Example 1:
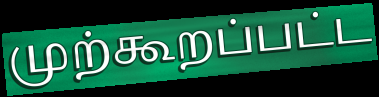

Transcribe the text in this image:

முற்கூறப்பட்ட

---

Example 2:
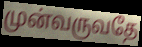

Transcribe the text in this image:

முன்வருவதே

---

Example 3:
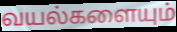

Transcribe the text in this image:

வயல்களையும்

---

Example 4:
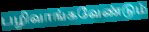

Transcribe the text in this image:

பழிவாங்கவேண்டும்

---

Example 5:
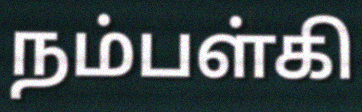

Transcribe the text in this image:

நம்பள்கி